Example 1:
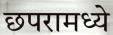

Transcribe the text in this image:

छपरामध्ये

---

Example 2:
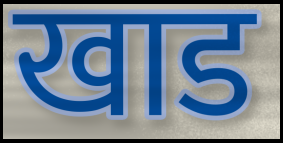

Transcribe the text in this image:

खाड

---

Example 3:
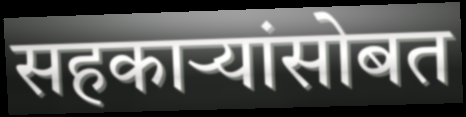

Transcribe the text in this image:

सहकाऱ्यांसोबत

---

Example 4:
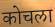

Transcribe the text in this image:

कोचला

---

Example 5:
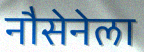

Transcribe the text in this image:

नौसेनेला